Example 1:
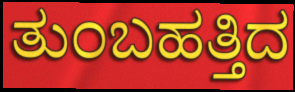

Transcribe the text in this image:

ತುಂಬಹತ್ತಿದ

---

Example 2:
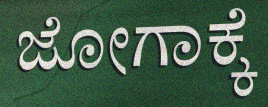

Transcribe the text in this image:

ಜೋಗಾಕ್ಕೆ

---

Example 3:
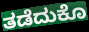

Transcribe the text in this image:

ತಡೆದುಕೊ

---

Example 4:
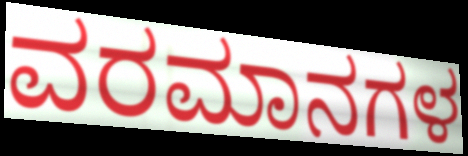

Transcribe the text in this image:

ವರಮಾನಗಳ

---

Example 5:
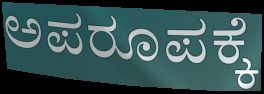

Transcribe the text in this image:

ಅಪರೂಪಕ್ಕೆ